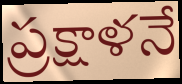
ప్రక్షాళనే